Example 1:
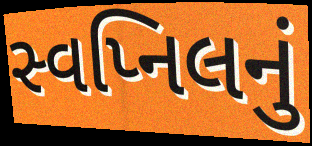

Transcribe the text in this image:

સ્વપ્નિલનું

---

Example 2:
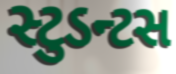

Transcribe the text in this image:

સ્ટુડન્ટસ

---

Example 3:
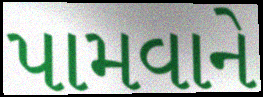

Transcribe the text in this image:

પામવાને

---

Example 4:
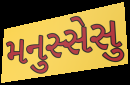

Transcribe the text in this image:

મનુસ્સેસુ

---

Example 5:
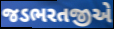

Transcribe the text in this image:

જડભરતજીએ